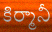
కిర్మానీ